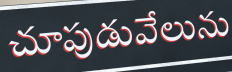
చూపుడువేలును